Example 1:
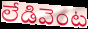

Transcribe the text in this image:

లేడివెంట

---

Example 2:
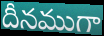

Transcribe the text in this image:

దీనముగా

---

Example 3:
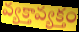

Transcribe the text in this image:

వ్యక్తావ్యక్తం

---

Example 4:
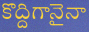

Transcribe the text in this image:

కొద్దిగానైనా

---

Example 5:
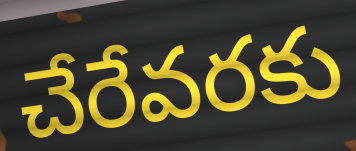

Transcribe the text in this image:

చేరేవరకు